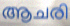
ആചരി